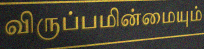
விருப்பமின்மையும்